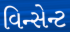
વિન્સેન્ટ